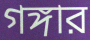
গঙ্গার